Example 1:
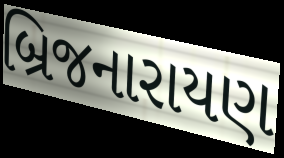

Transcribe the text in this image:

બ્રિજનારાયણ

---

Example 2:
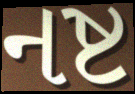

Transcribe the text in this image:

નષ્ટ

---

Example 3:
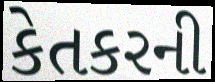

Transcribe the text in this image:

કેતકરની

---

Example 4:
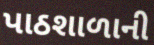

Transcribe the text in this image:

પાઠશાળાની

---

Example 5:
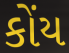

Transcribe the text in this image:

કોંય